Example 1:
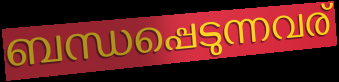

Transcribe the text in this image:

ബന്ധപ്പെടുന്നവര്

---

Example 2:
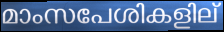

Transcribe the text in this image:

മാംസപേശികളില്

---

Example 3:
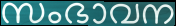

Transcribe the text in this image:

സംഭാവന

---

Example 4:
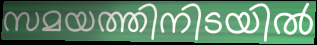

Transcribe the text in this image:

സമയത്തിനിടയിൽ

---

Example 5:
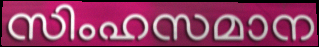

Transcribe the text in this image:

സിംഹസമാന